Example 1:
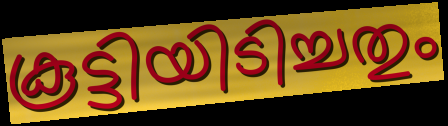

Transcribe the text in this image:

കൂട്ടിയിടിച്ചതും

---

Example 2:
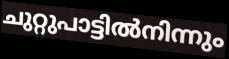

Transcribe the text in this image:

ചുറ്റുപാട്ടിൽനിന്നും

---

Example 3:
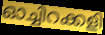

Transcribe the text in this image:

ഓച്ചിറക്കളി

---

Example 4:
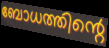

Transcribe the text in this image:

ബോധത്തിന്റെ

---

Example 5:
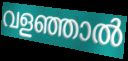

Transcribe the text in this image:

വളഞ്ഞാൽ